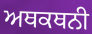
ਅਥਕਥਨੀ